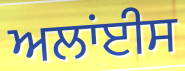
ਅਲਾਂਈਸ